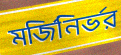
মর্জিনির্ভর